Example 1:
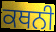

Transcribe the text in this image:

ਕਥਨੀ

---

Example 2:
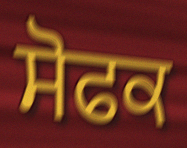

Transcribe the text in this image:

ਸੋਫਕ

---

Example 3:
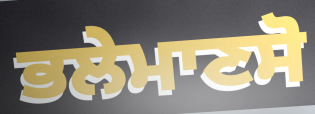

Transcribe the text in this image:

ਭਲੇਮਾਣਸੋ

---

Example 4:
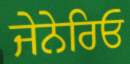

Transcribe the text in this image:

ਜੇਨੇਰਿਓ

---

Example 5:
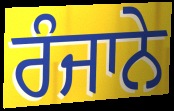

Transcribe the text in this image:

ਰੰਜਾਨੇ